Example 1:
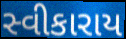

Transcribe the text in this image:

સ્વીકારાય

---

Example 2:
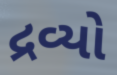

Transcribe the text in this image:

દ્રવ્યો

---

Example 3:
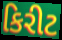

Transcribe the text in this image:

કિરીટ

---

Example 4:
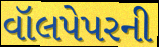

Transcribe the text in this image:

વૉલપેપરની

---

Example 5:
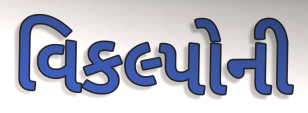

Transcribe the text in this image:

વિકલ્પોની